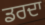
ਡਰਦਾ